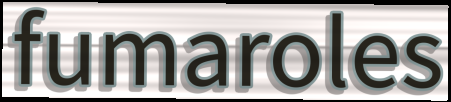
fumaroles